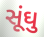
સૂંઘુ